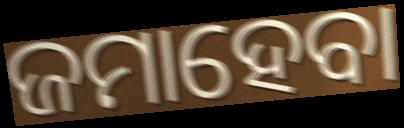
ଜମାହେବା